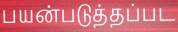
பயன்படுத்தப்பட